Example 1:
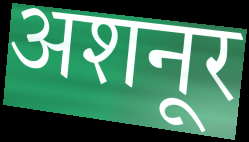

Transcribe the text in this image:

अशनूर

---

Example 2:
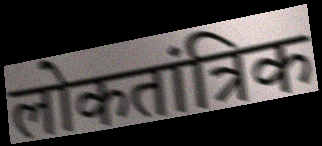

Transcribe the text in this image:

लोकतांत्रिक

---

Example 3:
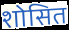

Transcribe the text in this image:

शोसित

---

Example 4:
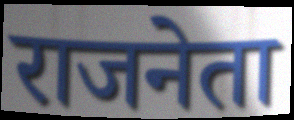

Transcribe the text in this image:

राजनेता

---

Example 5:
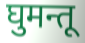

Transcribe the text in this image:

घुमन्तू